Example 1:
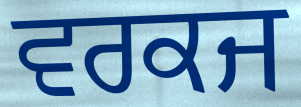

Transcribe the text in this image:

ਵਰਕਜ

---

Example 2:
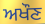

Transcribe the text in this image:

ਅਖੌਣ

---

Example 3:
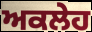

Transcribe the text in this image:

ਅਕਲੇਹ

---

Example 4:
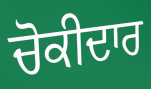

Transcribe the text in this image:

ਚੋਕੀਦਾਰ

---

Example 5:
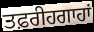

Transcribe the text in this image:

ਤਫ਼ਰੀਹਗਾਹਾਂ